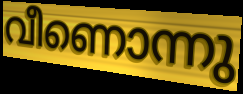
വീണൊന്നു